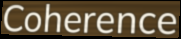
Coherence